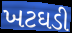
ખટઘડી